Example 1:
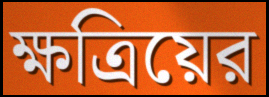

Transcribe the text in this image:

ক্ষত্রিয়ের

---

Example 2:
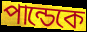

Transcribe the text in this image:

পান্ডেকে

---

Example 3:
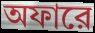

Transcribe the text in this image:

অফারে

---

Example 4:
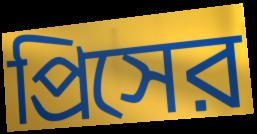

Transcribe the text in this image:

প্রিসের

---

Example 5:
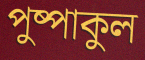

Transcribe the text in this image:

পুষ্পাকুল